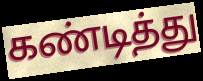
கண்டித்து